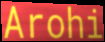
Arohi